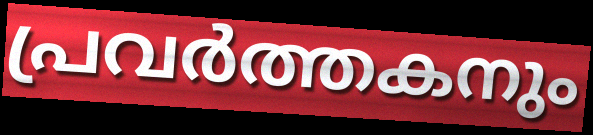
പ്രവർത്തകനും